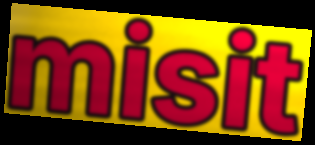
misit